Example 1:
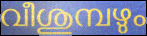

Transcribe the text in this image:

വീശുമ്പഴും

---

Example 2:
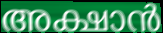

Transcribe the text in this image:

അക്ഷാൻ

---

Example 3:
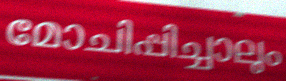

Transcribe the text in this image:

മോചിപ്പിച്ചാലും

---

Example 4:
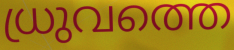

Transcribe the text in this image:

ധ്രുവത്തെ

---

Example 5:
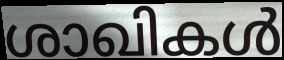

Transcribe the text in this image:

ശാഖികൾ